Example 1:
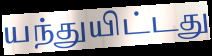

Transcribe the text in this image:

யந்துயிட்டது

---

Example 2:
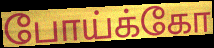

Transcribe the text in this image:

போய்க்கோ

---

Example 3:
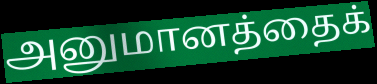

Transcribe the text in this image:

அனுமானத்தைக்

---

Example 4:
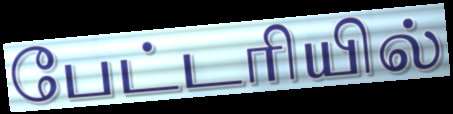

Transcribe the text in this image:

பேட்டரியில்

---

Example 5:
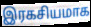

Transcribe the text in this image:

இரகசியமாக